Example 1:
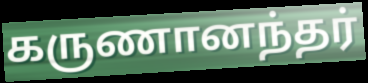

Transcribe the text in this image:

கருணானந்தர்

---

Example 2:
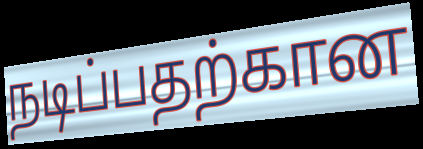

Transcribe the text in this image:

நடிப்பதற்கான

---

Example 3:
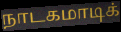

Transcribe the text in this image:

நாடகமாடிக்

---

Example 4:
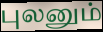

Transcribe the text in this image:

புலனும்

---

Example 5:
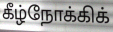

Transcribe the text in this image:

கீழ்நோக்கிக்